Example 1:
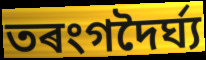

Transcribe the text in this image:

তৰংগদৈৰ্ঘ্য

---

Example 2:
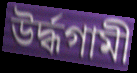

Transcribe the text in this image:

উৰ্দ্ধগামী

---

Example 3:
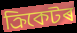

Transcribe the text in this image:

ক্ৰিকেটৰ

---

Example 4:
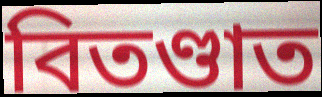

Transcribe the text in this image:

বিতণ্ডাত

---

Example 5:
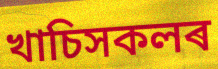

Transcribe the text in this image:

খাচিসকলৰ